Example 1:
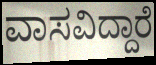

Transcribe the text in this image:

ವಾಸವಿದ್ದಾರೆ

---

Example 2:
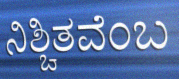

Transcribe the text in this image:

ನಿಶ್ಚಿತವೆಂಬ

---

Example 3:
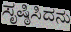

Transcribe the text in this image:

ಸೃಷ್ಠಿಸಿದನು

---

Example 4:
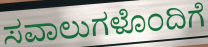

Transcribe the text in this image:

ಸವಾಲುಗಳೊಂದಿಗೆ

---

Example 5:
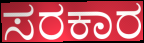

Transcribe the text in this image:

ಸರಕಾರ